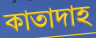
কাতাদাহ